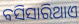
ବସିସାରିଥାଏ